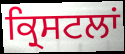
ਕ੍ਰਿਸਟਲਾਂ